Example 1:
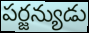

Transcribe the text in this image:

పర్జన్యుడు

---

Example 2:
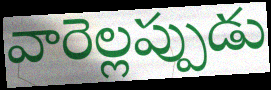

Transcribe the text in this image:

వారెల్లప్పుడు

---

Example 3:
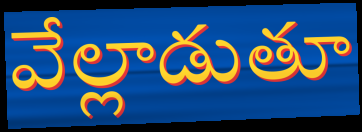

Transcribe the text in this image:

వేల్లాడుతూ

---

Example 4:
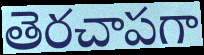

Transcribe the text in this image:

తెరచాపగా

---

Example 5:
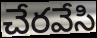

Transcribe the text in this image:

చేరవేసి